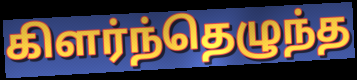
கிளர்ந்தெழுந்த